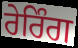
ਰੇਰਿੰਗ